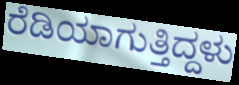
ರೆಡಿಯಾಗುತ್ತಿದ್ದಳು